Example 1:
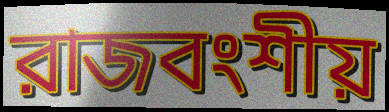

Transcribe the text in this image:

রাজবংশীয়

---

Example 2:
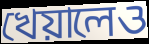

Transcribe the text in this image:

খেয়ালেও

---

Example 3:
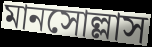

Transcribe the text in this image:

মানসোল্লাস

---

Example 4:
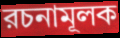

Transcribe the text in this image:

রচনামূলক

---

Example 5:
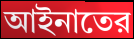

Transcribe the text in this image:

আইনাতের